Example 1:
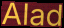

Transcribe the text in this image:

Alad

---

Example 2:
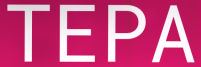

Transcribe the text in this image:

TEPA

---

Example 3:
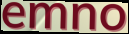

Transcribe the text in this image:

emno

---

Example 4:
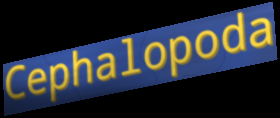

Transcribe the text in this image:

Cephalopoda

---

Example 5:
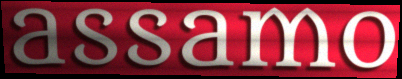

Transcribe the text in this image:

assamo